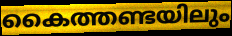
കൈത്തണ്ടയിലും